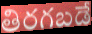
తిరగబడే